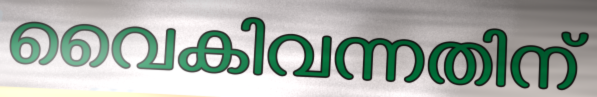
വൈകിവന്നതിന്